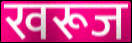
खरूज